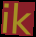
ik